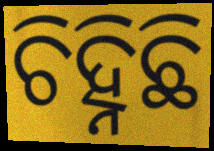
ଚିହ୍ନିଛି